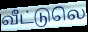
வீட்டுலெ